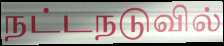
நட்டநடுவில்